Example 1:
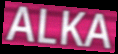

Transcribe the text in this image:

ALKA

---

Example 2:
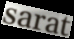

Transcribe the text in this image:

sarat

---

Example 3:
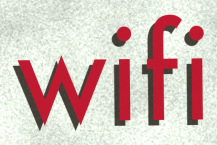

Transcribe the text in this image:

wifi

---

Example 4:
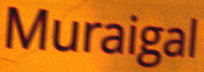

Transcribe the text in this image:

Muraigal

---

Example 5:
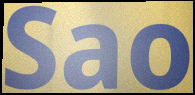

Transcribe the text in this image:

Sao